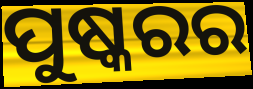
ପୁଷ୍କରର